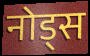
नोड्स